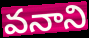
వనాని